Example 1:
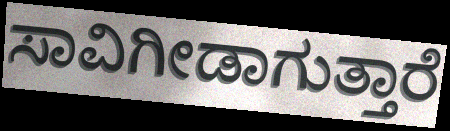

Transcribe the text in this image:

ಸಾವಿಗೀಡಾಗುತ್ತಾರೆ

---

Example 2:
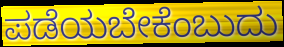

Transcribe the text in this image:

ಪಡೆಯಬೇಕೆಂಬುದು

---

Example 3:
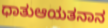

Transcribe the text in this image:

ಧಾತುಆಯತನಾನ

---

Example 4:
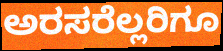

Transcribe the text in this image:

ಅರಸರೆಲ್ಲರಿಗೂ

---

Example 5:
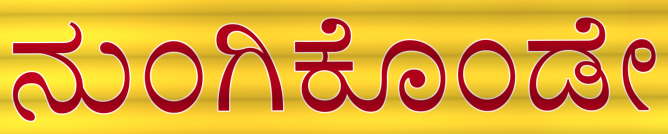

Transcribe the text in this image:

ನುಂಗಿಕೊಂಡೇ